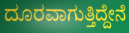
ದೂರವಾಗುತ್ತಿದ್ದೇನೆ